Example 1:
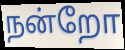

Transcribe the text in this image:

நன்றோ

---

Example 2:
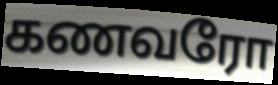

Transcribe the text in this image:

கணவரோ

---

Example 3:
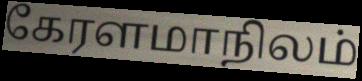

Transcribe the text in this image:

கேரளமாநிலம்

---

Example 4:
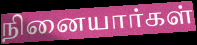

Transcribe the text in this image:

நினையார்கள்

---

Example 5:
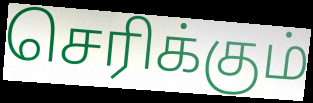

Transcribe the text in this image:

செரிக்கும்